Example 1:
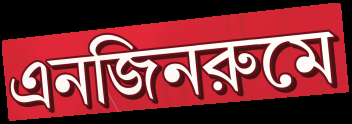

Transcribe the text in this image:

এনজিনরুমে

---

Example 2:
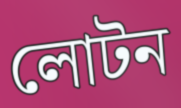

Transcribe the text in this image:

লোটন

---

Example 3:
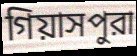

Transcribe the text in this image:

গিয়াসপুরা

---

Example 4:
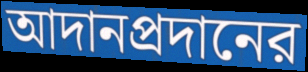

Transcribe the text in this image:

আদানপ্রদানের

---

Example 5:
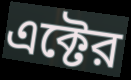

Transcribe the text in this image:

এক্টের